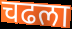
चढला